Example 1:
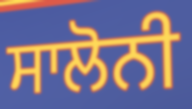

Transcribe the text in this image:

ਸਾਲੋਨੀ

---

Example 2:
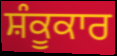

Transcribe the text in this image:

ਸ਼ੰਕੂਕਾਰ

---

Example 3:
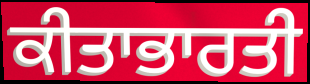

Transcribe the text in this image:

ਕੀਤਾਭਾਰਤੀ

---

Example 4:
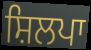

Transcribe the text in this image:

ਸ਼ਿਲਪਾ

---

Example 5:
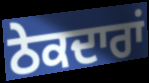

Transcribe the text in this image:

ਠੇਕਦਾਰਾਂ